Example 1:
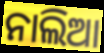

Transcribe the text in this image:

ନାଲିଆ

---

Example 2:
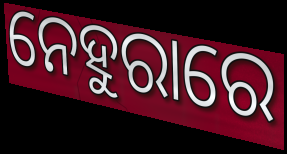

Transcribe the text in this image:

ନେହୁରାରେ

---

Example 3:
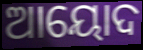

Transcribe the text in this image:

ଆୟୋଦ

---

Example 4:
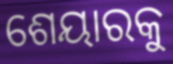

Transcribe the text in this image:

ଶେୟାରକୁ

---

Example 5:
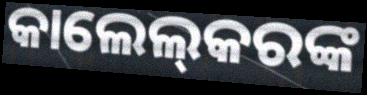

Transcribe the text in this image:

କାଲେଲ୍‌କରଙ୍କ